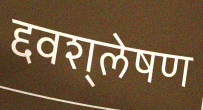
द्दवश्लेषण